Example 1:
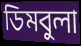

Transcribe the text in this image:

ডিমবুলা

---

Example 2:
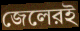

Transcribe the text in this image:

জেলেরই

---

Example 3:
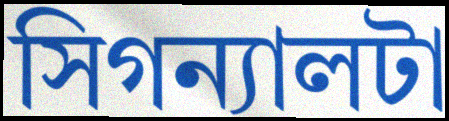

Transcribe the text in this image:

সিগন্যালটা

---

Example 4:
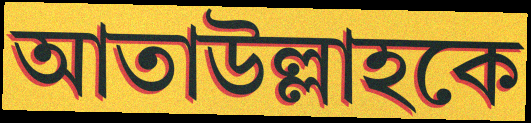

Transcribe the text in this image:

আতাউল্লাহকে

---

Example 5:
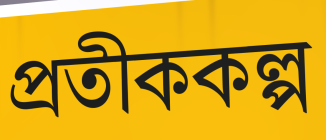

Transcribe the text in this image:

প্রতীককল্প